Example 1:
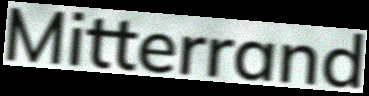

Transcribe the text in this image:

Mitterrand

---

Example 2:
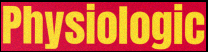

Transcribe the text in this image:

Physiologic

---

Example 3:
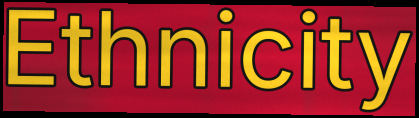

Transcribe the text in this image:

Ethnicity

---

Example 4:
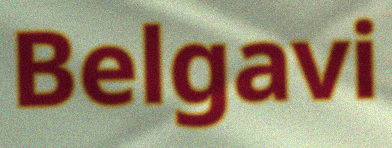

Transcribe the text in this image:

Belgavi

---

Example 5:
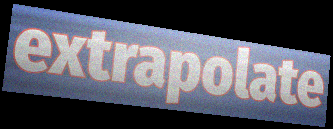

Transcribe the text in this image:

extrapolate